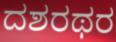
ದಶರಥರ